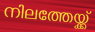
നിലത്തേയ്ക്ക്